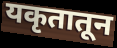
यकृतातून